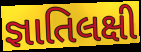
જ્ઞાતિલક્ષી